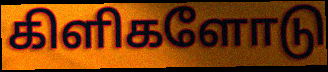
கிளிகளோடு